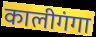
कालीगंगा